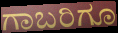
ಗಾಬರಿಗೂ